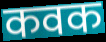
कवक